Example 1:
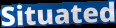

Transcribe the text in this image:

Situated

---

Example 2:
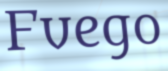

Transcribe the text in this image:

Fuego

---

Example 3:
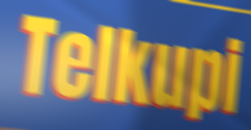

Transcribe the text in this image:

Telkupi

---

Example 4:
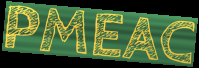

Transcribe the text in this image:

PMEAC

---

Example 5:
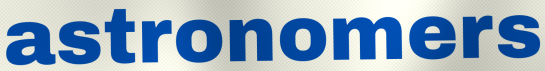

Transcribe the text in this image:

astronomers